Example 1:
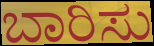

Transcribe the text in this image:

ಬಾರಿಸು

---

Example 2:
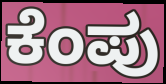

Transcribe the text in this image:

ಕೆಂಪು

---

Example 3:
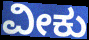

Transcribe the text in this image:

ವೀಕು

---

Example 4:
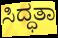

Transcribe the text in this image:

ಸಿದ್ಧತಾ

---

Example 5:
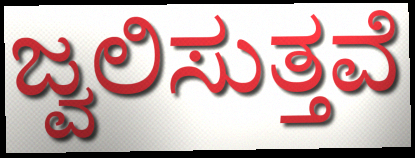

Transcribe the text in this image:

ಜ್ವಲಿಸುತ್ತವೆ